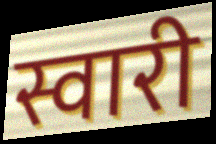
स्वारी